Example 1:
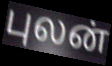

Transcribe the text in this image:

புலன்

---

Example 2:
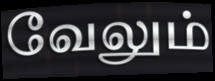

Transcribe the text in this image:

வேலும்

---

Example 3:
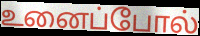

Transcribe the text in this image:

உனைப்போல்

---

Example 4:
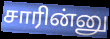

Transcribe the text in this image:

சாரின்னு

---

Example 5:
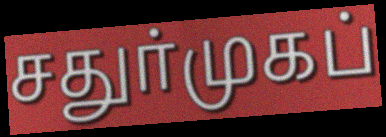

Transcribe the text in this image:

சதுர்முகப்